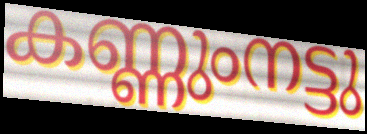
കണ്ണുംനട്ടു